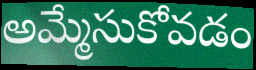
అమ్మేసుకోవడం